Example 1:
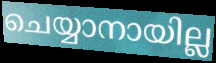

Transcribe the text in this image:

ചെയ്യാനായില്ല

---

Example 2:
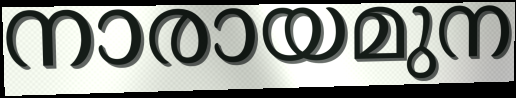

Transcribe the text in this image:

നാരായമുന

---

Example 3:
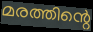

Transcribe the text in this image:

മരത്തിന്റെ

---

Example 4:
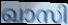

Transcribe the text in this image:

ഖാസി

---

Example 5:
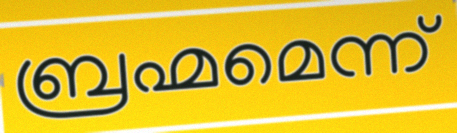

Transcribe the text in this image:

ബ്രഹ്മമെന്ന്